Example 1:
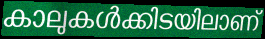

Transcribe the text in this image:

കാലുകൾക്കിടയിലാണ്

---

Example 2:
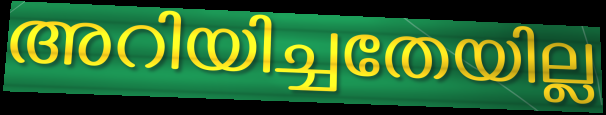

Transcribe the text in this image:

അറിയിച്ചതേയില്ല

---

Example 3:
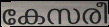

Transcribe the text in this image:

കേസരീ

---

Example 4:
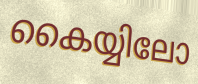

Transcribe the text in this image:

കൈയ്യിലോ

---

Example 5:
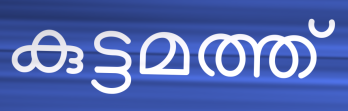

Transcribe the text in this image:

കുട്ടമത്ത്